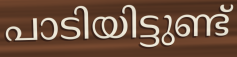
പാടിയിട്ടുണ്ട്